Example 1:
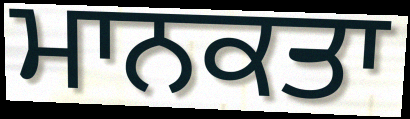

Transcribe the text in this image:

ਮਾਨਕਤਾ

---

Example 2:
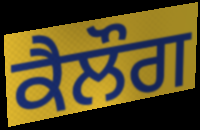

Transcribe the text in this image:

ਕੈਲੌਗ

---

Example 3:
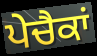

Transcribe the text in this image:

ਪੇਚੈਕਾਂ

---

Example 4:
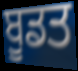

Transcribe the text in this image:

ਬੂਡਤ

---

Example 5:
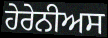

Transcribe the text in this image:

ਹੇਰੇਨੀਅਸ